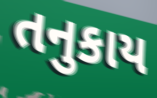
તનુકાય